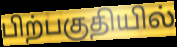
பிற்பகுதியில்